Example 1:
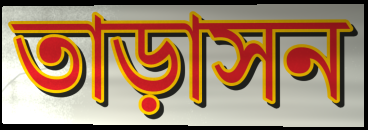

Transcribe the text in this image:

তাড়াসন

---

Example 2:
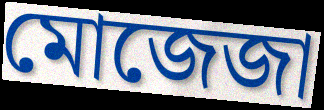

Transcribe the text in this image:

মোজেজা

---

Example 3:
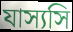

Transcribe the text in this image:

যাস্যসি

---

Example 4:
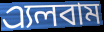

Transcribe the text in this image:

এ্যলবাম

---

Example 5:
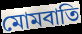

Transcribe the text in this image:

মোমবাতি